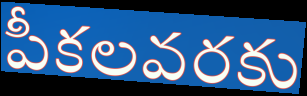
పీకలవరకు